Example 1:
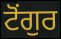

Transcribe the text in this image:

ਟੋਂਗੁਰ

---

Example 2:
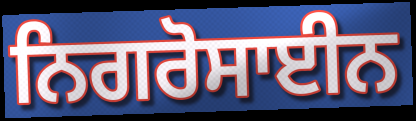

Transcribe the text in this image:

ਨਿਗਰੋਸਾਈਨ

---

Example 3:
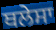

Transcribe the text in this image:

ਥਲੇਸਾ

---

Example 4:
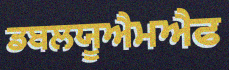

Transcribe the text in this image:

ਡਬਲਯੂਐਮਐਫ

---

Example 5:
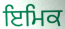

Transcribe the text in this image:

ਇਮਿਕ